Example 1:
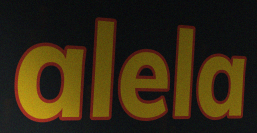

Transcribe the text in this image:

alela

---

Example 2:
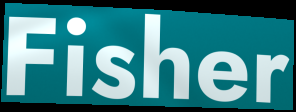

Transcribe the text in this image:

Fisher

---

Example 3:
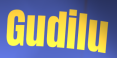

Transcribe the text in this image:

Gudilu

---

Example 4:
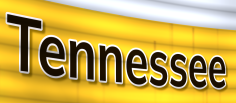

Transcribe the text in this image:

Tennessee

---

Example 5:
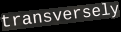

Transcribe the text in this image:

transversely